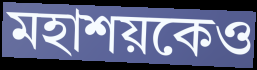
মহাশয়কেও